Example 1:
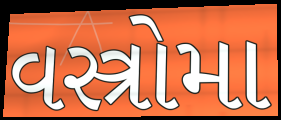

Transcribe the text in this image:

વસ્ત્રોમા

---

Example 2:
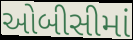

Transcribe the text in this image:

ઓબીસીમાં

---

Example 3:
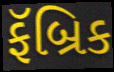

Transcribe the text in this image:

ફૅબ્રિક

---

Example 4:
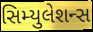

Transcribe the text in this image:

સિમ્યુલેશન્સ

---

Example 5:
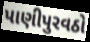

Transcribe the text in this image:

પાણીપુરવઠો